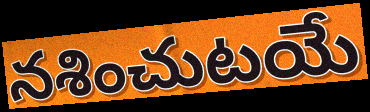
నశించుటయే